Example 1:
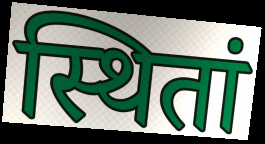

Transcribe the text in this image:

स्थितां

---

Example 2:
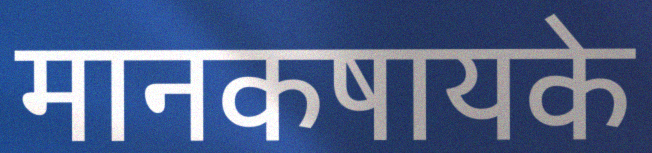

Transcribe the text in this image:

मानकषायके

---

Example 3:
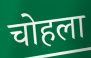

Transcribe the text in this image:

चोहला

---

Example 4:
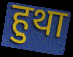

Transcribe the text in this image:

हुथा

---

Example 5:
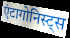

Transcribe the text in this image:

एंटागोनिस्ट्स